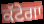
ਕੱਟੇਗਾ